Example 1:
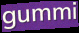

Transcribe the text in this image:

gummi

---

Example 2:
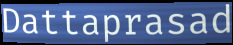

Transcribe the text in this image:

Dattaprasad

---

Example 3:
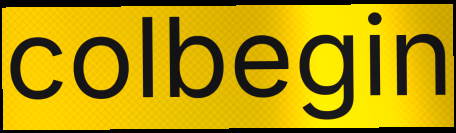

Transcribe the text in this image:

colbegin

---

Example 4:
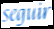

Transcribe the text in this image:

seguir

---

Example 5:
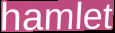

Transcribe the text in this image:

hamlet